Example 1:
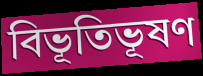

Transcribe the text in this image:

বিভূতিভূষণ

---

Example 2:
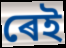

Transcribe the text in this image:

ৰেই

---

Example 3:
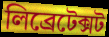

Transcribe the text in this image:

লিব্ৰেটেক্সট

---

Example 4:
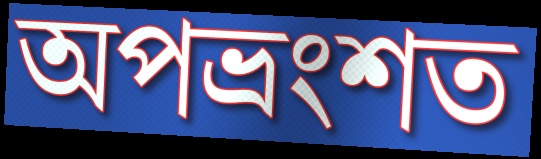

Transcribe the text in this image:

অপভ্ৰংশত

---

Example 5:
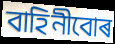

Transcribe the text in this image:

বাহিনীবোৰ